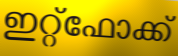
ഇറ്റ്ഫോക്ക്